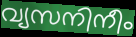
വ്യസനിനീം